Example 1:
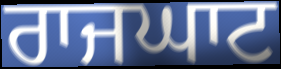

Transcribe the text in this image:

ਰਾਜਘਾਟ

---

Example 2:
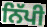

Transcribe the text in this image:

ਨਿੱਪੀ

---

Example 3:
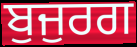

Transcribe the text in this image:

ਬੁਜੁਰਗ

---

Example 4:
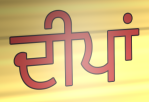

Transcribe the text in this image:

ਦੀਪਾਂ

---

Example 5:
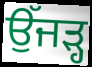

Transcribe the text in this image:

ਉੱਜੜ੍ਹ